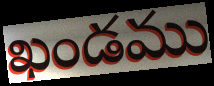
ఖండము